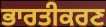
ਭਾਰਤੀਕਰਣ